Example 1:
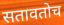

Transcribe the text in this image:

सतावतोच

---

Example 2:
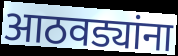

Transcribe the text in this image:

आठवड्यांना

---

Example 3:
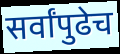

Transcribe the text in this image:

सर्वांपुढेच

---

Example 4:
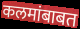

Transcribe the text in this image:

कलमांबाबत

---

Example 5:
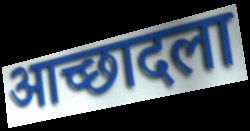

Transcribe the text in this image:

आच्छादला